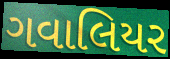
ગવાલિયર